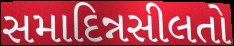
સમાદિન્નસીલતો